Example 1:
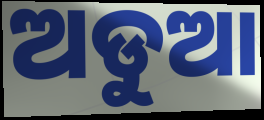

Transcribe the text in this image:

ଅଡୁଆ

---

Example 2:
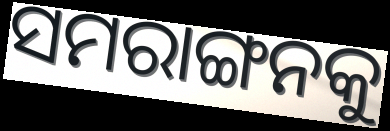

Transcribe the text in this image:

ସମରାଙ୍ଗନକୁ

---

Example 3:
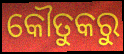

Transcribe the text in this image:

କୌତୁକରୁ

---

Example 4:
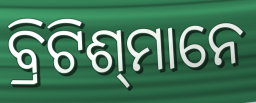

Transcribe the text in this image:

ବ୍ରିଟିଶ୍‍ମାନେ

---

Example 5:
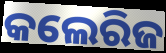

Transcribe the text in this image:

କଲେରିଜ